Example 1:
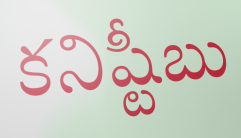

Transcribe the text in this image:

కనిష్టీబు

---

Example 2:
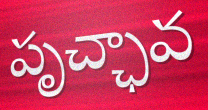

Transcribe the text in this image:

పృచ్ఛావ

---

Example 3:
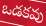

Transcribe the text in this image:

ఒడకవు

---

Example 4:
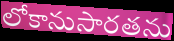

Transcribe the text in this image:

లోకానుసారతను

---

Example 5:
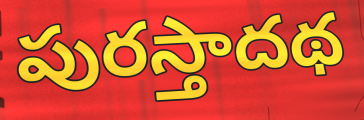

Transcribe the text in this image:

పురస్తాదథ